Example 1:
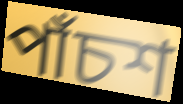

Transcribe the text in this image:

পাঁচশ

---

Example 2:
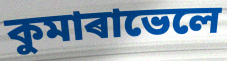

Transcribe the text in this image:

কুমাৰাভেলে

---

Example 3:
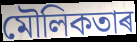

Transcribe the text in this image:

মৌলিকতাৰ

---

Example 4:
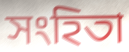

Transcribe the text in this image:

সংহিতা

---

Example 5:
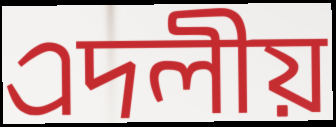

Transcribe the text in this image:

এদলীয়